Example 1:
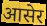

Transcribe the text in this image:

आसेर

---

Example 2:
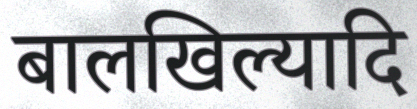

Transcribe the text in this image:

बालखिल्यादि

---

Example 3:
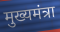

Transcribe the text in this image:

मुख्यमंत्रा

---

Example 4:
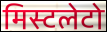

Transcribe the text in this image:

मिस्टलेटो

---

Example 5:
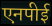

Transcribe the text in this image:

एनपीई